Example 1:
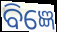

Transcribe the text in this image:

ବିଜ୍ଞେ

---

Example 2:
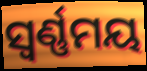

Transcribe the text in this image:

ସ୍ୱର୍ଣ୍ଣମୟ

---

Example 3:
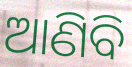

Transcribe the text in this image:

ଆଣିବି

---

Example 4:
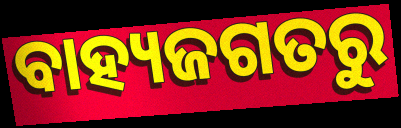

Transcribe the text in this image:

ବାହ୍ୟଜଗତରୁ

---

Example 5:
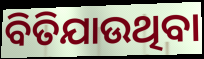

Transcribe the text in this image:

ବିତିଯାଉଥିବା